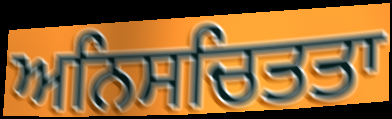
ਅਨਿਸਚਿਤਤਾ